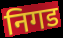
निगड